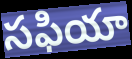
సఫియా